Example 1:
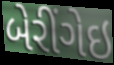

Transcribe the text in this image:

બેરીંગેઇ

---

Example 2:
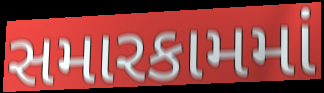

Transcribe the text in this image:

સમારકામમાં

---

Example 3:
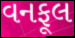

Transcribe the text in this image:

વનફૂલ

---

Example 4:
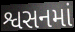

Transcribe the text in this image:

શ્વસનમાં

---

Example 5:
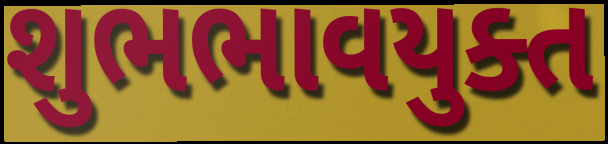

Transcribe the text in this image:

શુભભાવયુક્ત